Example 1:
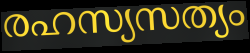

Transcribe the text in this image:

രഹസ്യസത്യം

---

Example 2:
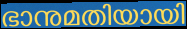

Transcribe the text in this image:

ഭാനുമതിയായി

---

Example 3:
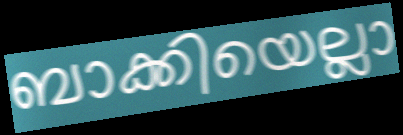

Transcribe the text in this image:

ബാക്കിയെല്ലാ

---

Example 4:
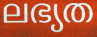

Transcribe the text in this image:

ലഭ്യത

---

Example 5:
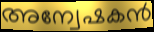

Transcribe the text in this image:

അന്വേഷകൻ